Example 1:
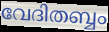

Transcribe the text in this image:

വേദിതബ്ബം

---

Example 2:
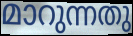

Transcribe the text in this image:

മാറുന്നതു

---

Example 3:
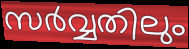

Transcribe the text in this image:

സർവ്വതിലും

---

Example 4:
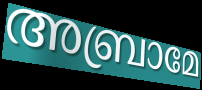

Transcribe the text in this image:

അബ്രാമേ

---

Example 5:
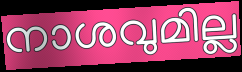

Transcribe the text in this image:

നാശവുമില്ല